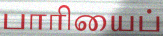
பாரியைப்